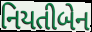
નિયતીબેન